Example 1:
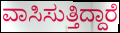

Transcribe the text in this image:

ವಾಸಿಸುತ್ತಿದ್ದಾರೆ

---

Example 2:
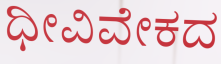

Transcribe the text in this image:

ಧೀವಿವೇಕದ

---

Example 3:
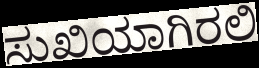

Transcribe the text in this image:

ಸುಖಿಯಾಗಿರಲಿ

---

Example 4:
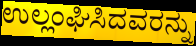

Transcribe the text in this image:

ಉಲ್ಲಂಘಿಸಿದವರನ್ನು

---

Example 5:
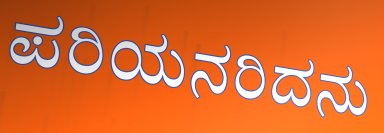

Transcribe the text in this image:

ಪರಿಯನರಿದನು